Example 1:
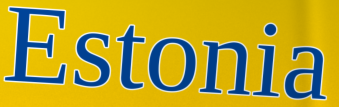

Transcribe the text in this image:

Estonia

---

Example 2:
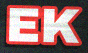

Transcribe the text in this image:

EK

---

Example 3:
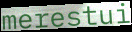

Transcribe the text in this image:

merestui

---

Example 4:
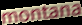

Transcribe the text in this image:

montana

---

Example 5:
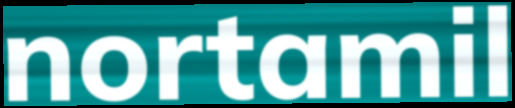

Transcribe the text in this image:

nortamil